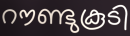
റൗണ്ടുകൂടി